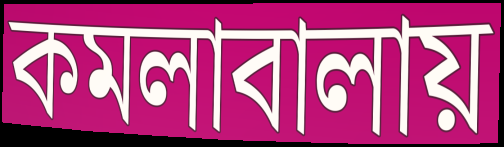
কমলাবালায়